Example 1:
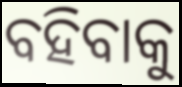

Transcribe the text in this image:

ବହିବାକୁ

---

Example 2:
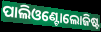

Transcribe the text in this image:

ପାଲିଓଣ୍ଟୋଲୋଜିଷ୍ଟ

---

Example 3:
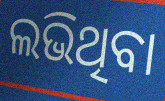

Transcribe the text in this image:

ଲଭିଥିବା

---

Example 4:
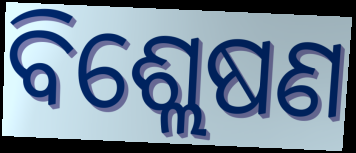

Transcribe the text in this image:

ବିଶ୍ଲେଷଣ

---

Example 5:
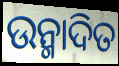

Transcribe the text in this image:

ଉନ୍ମାଦିତ